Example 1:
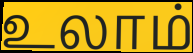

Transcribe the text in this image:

உலாம்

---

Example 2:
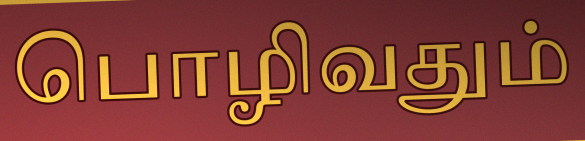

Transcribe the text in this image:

பொழிவதும்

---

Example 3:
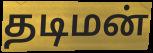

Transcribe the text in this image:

தடிமன்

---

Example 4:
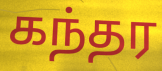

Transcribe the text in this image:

கந்தர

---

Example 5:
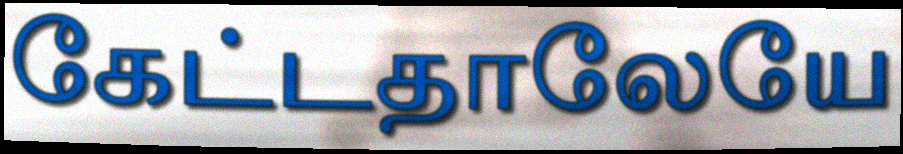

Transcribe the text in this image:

கேட்டதாலேயே